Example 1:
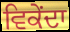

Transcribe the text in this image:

ਵਿਕੇਂਦਾ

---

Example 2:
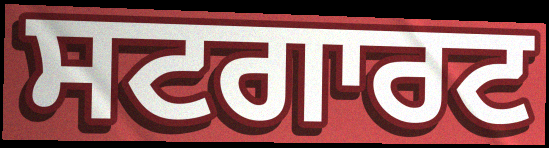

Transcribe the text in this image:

ਸਟਗਾਰਟ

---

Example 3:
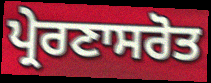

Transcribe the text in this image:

ਪ੍ਰੇਰਣਾਸਰੋਤ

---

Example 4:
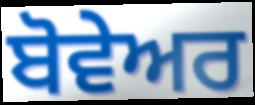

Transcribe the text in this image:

ਬੋਵੇਅਰ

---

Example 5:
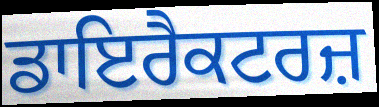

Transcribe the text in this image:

ਡਾਇਰੈਕਟਰਜ਼